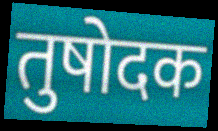
तुषोदक